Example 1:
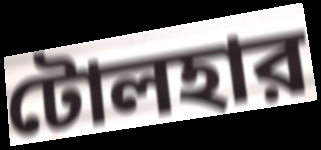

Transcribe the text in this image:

টোলহার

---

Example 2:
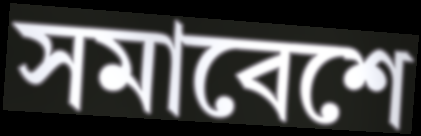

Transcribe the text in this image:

সমাবেশে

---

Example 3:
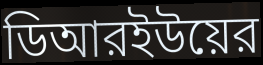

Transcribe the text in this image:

ডিআরইউয়ের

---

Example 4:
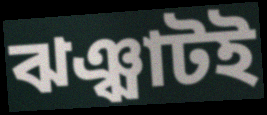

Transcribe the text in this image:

ঝঞ্ঝাটই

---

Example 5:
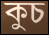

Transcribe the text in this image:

কুচ